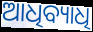
ଆଧିବ୍ୟାଧି